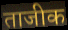
ताजीक